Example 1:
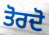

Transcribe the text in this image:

ਤੋਰਦੋ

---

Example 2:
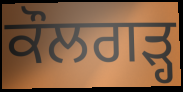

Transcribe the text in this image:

ਕੌਲਗੜ੍ਹ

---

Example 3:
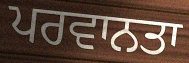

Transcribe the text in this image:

ਪਰਵਾਨਤਾ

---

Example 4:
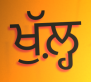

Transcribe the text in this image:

ਖੁੱਲ਼੍ਹ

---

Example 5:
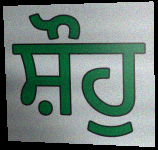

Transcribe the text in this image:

ਸ਼ੌਹੁ